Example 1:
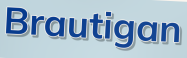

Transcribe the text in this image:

Brautigan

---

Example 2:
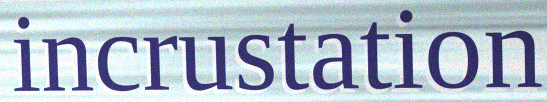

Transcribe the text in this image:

incrustation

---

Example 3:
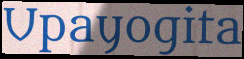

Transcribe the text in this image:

Upayogita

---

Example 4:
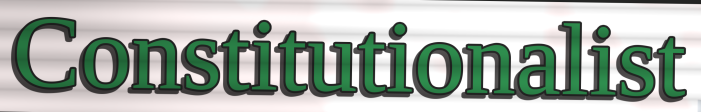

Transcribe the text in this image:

Constitutionalist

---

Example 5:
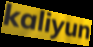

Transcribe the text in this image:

kaliyun